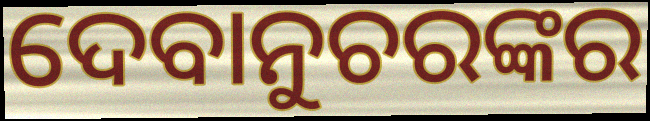
ଦେବାନୁଚରଙ୍କର